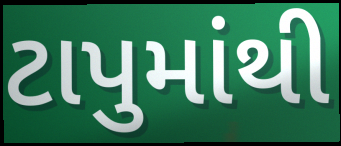
ટાપુમાંથી